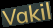
Vakil